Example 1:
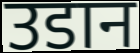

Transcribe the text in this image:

उडान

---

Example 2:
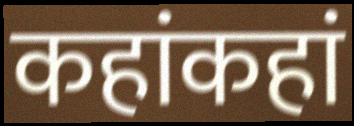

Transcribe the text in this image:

कहांकहां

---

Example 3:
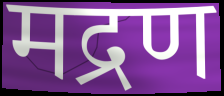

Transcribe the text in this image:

मद्रण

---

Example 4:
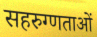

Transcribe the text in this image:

सहरुग्णताओं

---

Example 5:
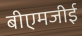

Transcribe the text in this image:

बीएमजीई